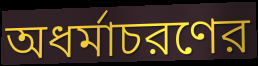
অধর্মাচরণের